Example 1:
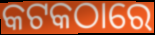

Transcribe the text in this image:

କଟକଠାରେ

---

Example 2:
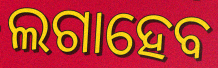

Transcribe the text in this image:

ଲଗାହେବ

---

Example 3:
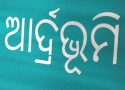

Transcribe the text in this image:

ଆର୍ଦ୍ରଭୂମି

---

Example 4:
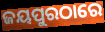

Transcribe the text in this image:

ଜୟପୁରଠାରେ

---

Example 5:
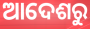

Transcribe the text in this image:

ଆଦେଶରୁ